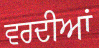
ਵਰਦੀਆਂ